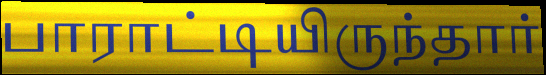
பாராட்டியிருந்தார்